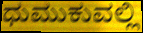
ಧುಮುಕುವಲ್ಲಿ